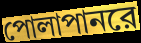
পোলাপানরে